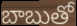
బాబుతో